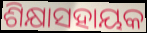
ଶିକ୍ଷାସହାୟକ